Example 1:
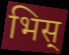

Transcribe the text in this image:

भिस्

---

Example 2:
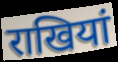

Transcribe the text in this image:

राखियां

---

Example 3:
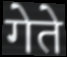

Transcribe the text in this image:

गेते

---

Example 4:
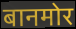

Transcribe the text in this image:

बानमोर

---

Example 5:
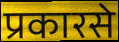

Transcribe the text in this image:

प्रकारसे